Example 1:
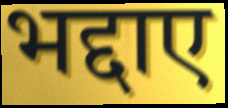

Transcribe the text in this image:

भद्दाए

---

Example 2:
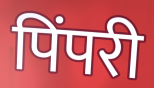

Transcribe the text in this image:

पिंपरी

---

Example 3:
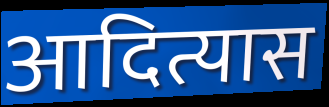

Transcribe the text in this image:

आदित्यास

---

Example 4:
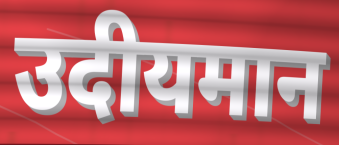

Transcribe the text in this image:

उदीयमान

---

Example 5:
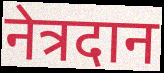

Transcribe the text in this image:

नेत्रदान